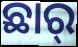
ଛାର୍